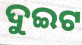
ଦୁଇଟ